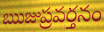
ఋజుప్రవర్తనం